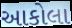
આકોલા